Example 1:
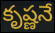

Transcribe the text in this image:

కృష్ణనే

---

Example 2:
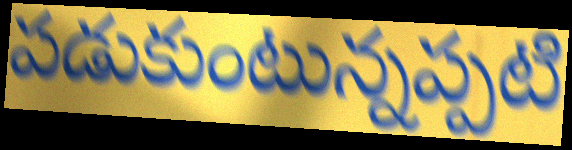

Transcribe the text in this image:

పడుకుంటున్నప్పటి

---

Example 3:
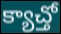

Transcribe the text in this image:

క్యాచ్తో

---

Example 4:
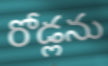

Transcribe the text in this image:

రోడ్లను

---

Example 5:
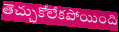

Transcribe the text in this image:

తెచ్చుకోలేకపోయింది